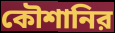
কৌশানির